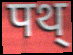
पथ्